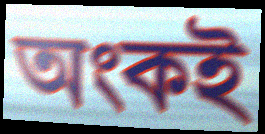
অংকই